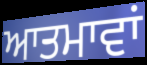
ਆਤਮਾਵਾਂ